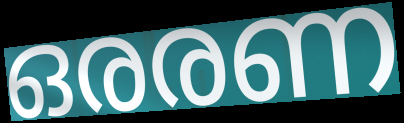
ഒരരണ